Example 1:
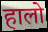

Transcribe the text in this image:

हालो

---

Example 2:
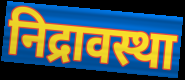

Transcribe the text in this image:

निद्रावस्था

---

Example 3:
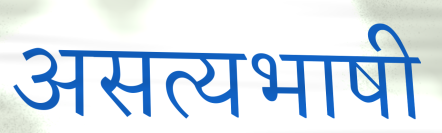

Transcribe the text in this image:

असत्यभाषी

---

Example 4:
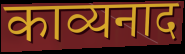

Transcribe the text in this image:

काव्यनाद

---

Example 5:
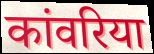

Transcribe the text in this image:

कांवरिया